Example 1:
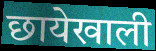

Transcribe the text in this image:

छायेखाली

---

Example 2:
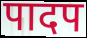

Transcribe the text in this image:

पादप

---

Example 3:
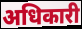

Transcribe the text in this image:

अधिकारी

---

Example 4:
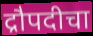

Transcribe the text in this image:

द्रौपदीचा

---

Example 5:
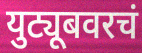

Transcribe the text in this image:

युट्यूबवरचं